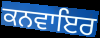
ਕਨਵਾਇਰ